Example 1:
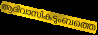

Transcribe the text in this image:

ആദിവാസികുടുംബത്തെ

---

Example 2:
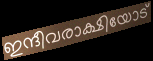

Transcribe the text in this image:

ഇന്ദീവരാക്ഷിയോട്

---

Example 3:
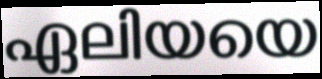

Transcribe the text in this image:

ഏലിയയെ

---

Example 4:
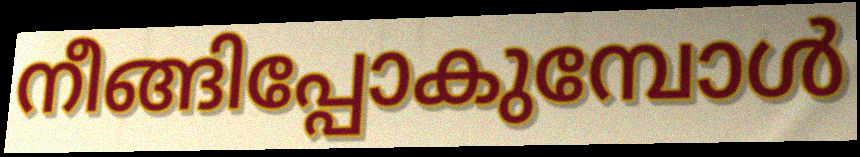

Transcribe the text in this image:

നീങ്ങിപ്പോകുമ്പോൾ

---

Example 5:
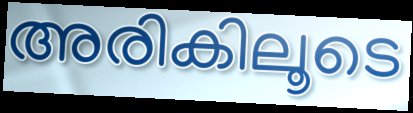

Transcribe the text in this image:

അരികിലൂടെ